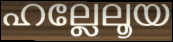
ഹല്ലേലൂയ